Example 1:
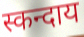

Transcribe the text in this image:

स्कन्दाय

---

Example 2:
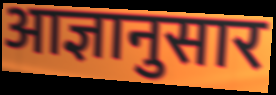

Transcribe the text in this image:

आज्ञानुसार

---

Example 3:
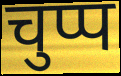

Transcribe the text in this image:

चुप्प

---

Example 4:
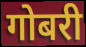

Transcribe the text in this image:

गोबरी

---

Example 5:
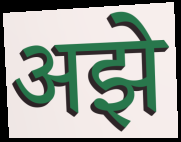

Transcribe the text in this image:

अझे